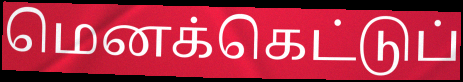
மெனக்கெட்டுப்